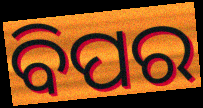
ବିପର